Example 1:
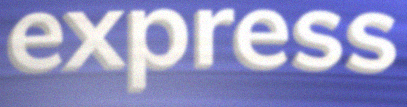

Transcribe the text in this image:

express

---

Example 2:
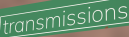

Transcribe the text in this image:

transmissions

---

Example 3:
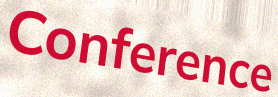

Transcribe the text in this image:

Conference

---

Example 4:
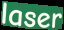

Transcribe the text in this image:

laser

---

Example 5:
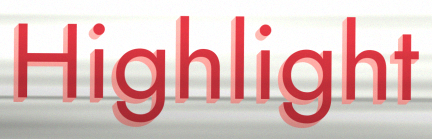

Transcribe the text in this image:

Highlight